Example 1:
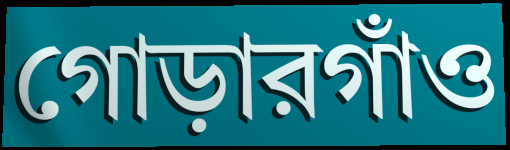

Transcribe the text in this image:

গোড়ারগাঁও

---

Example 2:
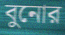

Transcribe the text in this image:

বুনোর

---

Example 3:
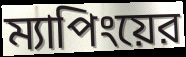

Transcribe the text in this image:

ম্যাপিংয়ের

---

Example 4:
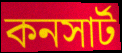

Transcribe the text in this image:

কনসার্ট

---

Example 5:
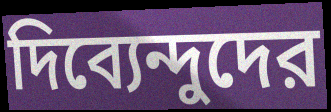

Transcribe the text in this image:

দিব্যেন্দুদের